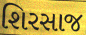
શિરસાજ